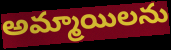
అమ్మాయిలను